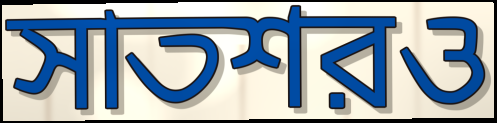
সাতশরও